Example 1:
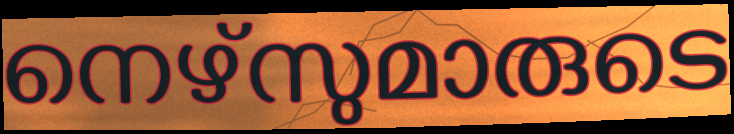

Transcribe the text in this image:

നെഴ്സുമാരുടെ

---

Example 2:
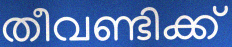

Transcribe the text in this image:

തീവണ്ടിക്ക്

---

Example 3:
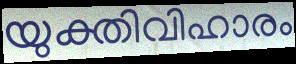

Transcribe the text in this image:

യുക്തിവിഹാരം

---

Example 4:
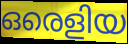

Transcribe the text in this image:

ഒരെളിയ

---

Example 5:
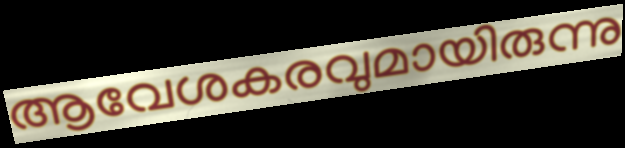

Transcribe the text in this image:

ആവേശകരവുമായിരുന്നു